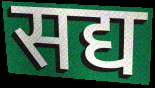
सद्य